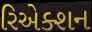
રિએક્શન